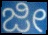
ಜೀ